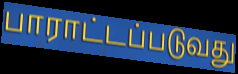
பாராட்டப்படுவது